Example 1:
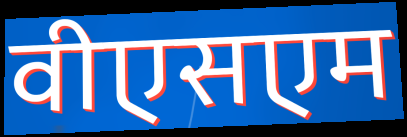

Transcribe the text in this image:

वीएसएम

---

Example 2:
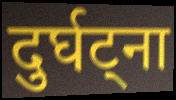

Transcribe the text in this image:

दुर्घट्ना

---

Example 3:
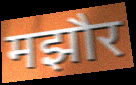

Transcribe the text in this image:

मझौर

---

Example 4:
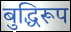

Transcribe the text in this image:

बुद्धिरूप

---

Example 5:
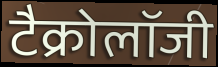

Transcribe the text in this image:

टैक्रोलॉजी